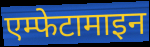
एम्फेटामाइन